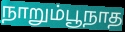
நாறும்பூநாத